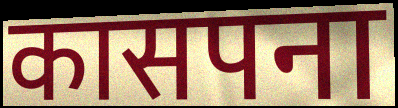
कासपना